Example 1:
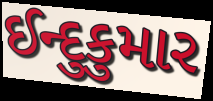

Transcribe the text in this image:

ઈન્દુકુમાર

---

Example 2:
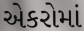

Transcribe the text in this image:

એકરોમાં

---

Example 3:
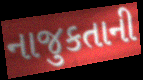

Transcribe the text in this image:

નાજુકતાની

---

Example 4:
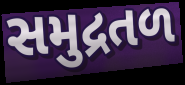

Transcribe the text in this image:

સમુદ્રતળ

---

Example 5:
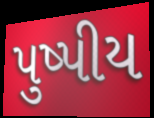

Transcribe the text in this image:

પુષ્પીય